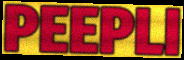
PEEPLI